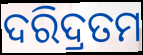
ଦରିଦ୍ରତମ